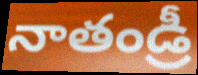
నాతండ్రీ